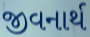
જીવનાર્થ